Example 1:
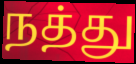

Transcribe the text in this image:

நத்து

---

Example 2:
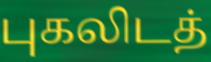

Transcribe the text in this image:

புகலிடத்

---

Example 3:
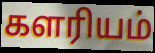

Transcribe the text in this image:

களரியம்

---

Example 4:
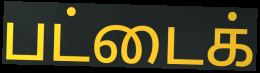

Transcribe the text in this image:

பட்டைக்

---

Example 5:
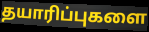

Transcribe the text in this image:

தயாரிப்புகளை